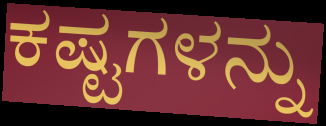
ಕಷ್ಟಗಳನ್ನು